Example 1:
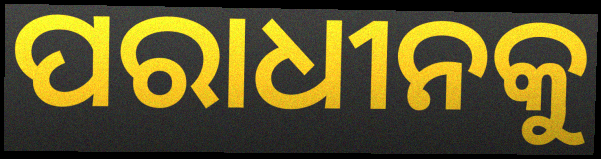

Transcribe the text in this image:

ପରାଧୀନକୁ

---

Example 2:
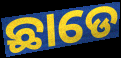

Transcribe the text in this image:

ଛାଡେ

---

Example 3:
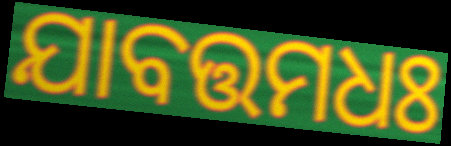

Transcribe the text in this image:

ଯାବତ୍ତମଧଃ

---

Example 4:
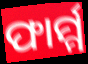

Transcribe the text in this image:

ଫାର୍ମ୍ମ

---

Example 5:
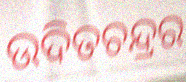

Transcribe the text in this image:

ଉଦିତଚନ୍ଦ୍ରର